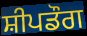
ਸ਼ੀਪਡੌਗ